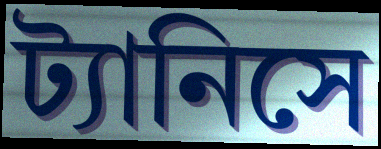
ট্যানিসে